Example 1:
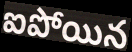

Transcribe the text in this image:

ఐపోయిన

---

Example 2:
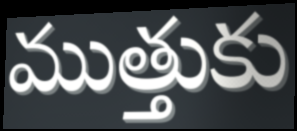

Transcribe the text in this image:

ముత్తుకు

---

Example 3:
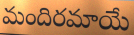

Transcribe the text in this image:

మందిరమాయే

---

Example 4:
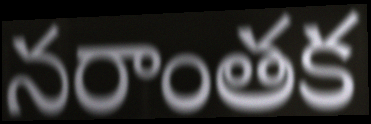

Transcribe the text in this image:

నరాంతక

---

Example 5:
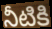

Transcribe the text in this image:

నీటికి